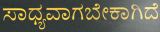
ಸಾಧ್ಯವಾಗಬೇಕಾಗಿದೆ